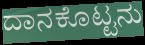
ದಾನಕೊಟ್ಟನು